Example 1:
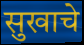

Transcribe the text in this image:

सुखाचे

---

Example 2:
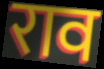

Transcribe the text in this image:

राव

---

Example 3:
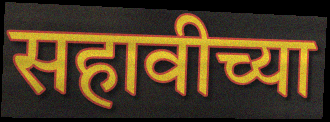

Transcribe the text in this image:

सहावीच्या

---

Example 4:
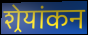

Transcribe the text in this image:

श्रेयांकन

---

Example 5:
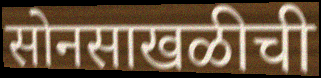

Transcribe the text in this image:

सोनसाखळीची